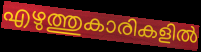
എഴുത്തുകാരികളിൽ